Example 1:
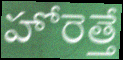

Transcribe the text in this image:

హోరెత్తే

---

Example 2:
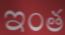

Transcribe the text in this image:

ఇంత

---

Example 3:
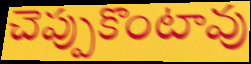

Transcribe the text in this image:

చెప్పుకొంటావు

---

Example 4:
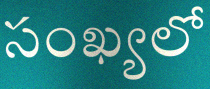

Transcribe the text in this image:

సంఖ్యలో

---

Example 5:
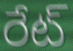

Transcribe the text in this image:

రేట్